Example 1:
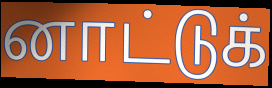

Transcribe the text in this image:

னாட்டுக்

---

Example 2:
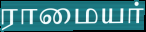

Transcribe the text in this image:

ராமையர்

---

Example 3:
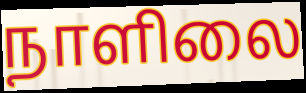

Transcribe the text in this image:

நாளிலை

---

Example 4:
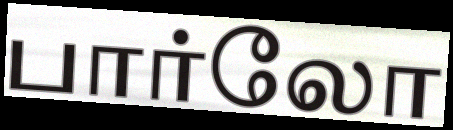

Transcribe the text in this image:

பார்லோ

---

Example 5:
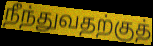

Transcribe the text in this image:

நீந்துவதற்குத்